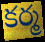
కర్మ